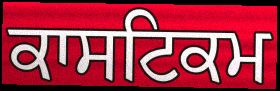
ਕਾਸਟਿਕਮ